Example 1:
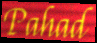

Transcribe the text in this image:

Pahad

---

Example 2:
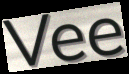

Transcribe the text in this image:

Vee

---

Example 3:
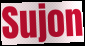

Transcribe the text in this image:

Sujon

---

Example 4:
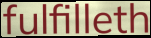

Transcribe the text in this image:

fulfilleth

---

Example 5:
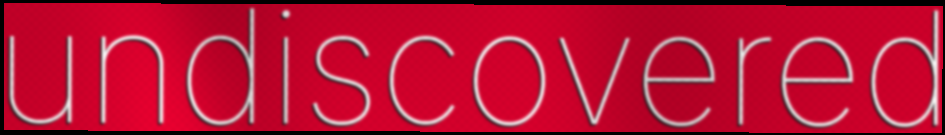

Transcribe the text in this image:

undiscovered